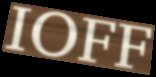
IOFF